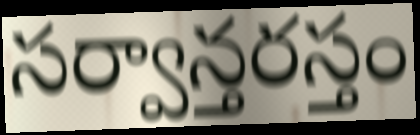
సర్వాన్తరస్తం